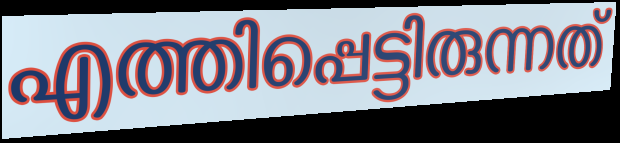
എത്തിപ്പെട്ടിരുന്നത്